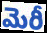
మెరీ